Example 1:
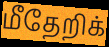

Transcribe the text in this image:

மீதேறிக்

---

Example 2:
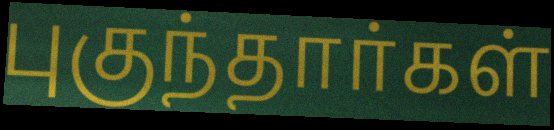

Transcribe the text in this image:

புகுந்தார்கள்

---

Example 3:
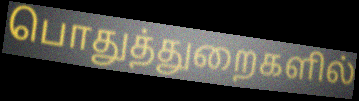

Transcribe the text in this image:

பொதுத்துறைகளில்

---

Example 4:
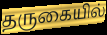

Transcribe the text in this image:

தருகையில்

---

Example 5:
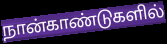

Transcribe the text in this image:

நான்காண்டுகளில்